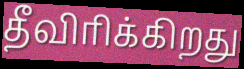
தீவிரிக்கிறது